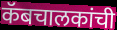
कॅबचालकांची